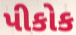
પીકોક